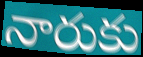
నారుకు